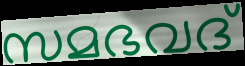
സമഭവദ്